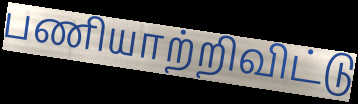
பணியாற்றிவிட்டு